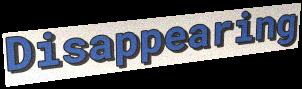
Disappearing